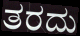
ತರದು